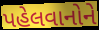
પહેલવાનોને